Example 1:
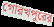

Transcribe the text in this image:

গোরখপুরের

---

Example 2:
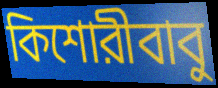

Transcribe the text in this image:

কিশোরীবাবু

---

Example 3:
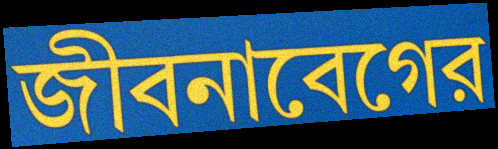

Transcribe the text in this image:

জীবনাবেগের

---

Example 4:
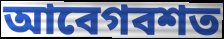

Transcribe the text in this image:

আবেগবশত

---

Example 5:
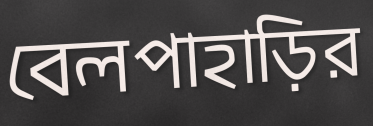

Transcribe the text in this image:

বেলপাহাড়ির